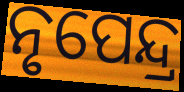
ନୃପେନ୍ଦ୍ର